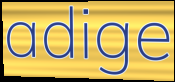
adige